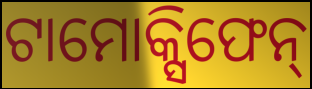
ଟାମୋକ୍ସିଫେନ୍